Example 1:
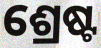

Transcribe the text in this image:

ଶ୍ରେଷ୍ଟ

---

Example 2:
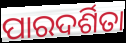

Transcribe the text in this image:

ପାରଦର୍ଶିତା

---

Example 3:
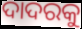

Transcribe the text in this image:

ଦାଦରକୁ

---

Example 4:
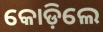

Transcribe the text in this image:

କୋଡ଼ିଲେ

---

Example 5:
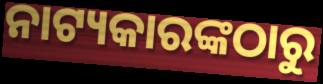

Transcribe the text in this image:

ନାଟ୍ୟକାରଙ୍କଠାରୁ